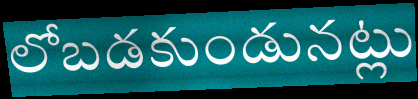
లోబడకుండునట్లు